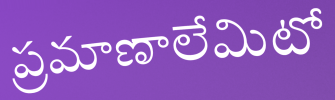
ప్రమాణాలేమిటో